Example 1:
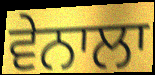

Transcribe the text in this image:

ਵੇਨਾਲਾ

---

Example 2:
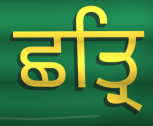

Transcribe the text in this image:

ਛਤ੍ਰਿ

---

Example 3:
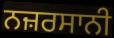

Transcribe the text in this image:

ਨਜ਼ਰਸਾਨੀ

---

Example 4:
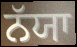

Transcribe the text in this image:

ਨੱਯਾ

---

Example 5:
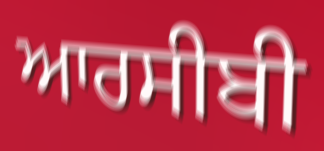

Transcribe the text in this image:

ਆਰਸੀਬੀ